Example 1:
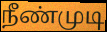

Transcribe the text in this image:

நீண்முடி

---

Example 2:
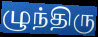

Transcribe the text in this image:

ழுந்திரு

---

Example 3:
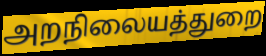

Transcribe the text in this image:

அறநிலையத்துறை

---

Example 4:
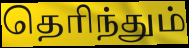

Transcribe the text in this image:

தெரிந்தும்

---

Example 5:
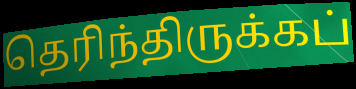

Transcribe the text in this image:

தெரிந்திருக்கப்